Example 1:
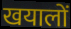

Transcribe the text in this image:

खयालों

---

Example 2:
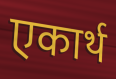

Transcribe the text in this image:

एकार्थ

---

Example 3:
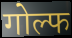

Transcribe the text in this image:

गोल्फ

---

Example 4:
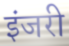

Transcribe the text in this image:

इंजरी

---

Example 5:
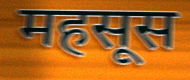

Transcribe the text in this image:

महसूस